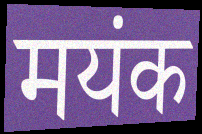
मयंक